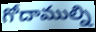
గోదాముల్ని